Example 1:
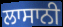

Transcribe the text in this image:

ਲਾਸਾਨੀ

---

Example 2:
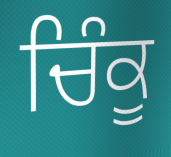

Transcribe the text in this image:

ਚਿੰਕੂ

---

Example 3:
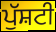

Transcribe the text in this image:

ਪੁੱਸ਼ਟੀ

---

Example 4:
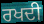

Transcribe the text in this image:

ਰਖਦੀ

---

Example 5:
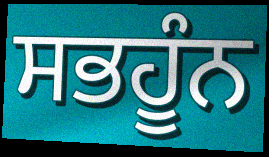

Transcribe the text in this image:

ਸਭਹੂੰਨ